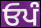
ਓਪੰ